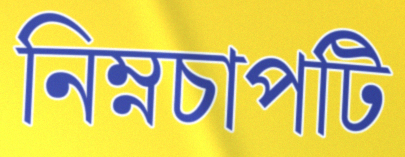
নিম্নচাপটি